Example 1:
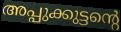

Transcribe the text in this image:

അപ്പുക്കുട്ടന്റെ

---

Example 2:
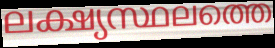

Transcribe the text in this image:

ലക്ഷ്യസ്ഥലത്തെ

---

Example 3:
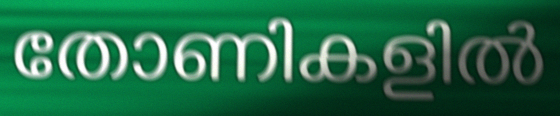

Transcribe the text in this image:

തോണികളിൽ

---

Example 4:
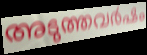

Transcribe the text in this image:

അടുത്തവർഷം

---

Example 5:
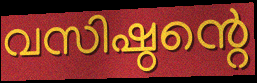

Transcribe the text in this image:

വസിഷ്ഠന്റെ